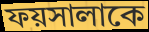
ফয়সালাকে